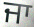
ਜਾ